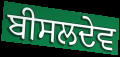
ਬੀਸਲਦੇਵ